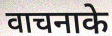
वाचनाके